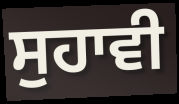
ਸੁਹਾਵੀ